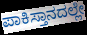
ಪಾಕಿಸ್ತಾನದಲ್ಲೇ